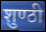
शुण्ठी